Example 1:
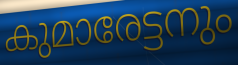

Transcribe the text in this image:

കുമാരേട്ടനും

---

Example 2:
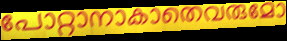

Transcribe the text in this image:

പോറ്റാനാകാതെവരുമോ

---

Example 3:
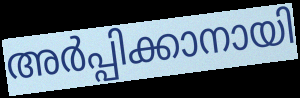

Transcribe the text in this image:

അർപ്പിക്കാനായി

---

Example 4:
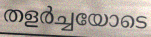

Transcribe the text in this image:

തളർച്ചയോടെ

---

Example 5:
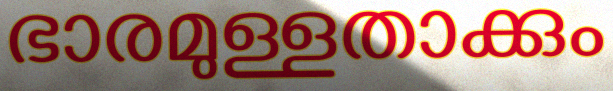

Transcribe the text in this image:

ഭാരമുള്ളതാക്കും